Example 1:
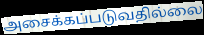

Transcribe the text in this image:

அசைக்கப்படுவதில்லை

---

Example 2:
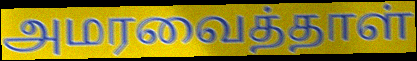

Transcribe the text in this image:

அமரவைத்தாள்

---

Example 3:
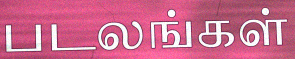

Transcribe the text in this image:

படலங்கள்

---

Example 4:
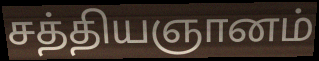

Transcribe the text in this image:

சத்தியஞானம்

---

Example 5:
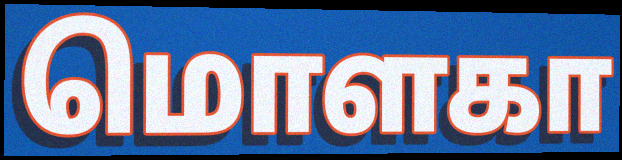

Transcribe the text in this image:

மொளகா